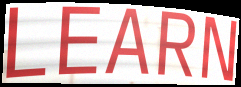
LEARN